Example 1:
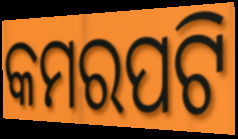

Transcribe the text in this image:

କମରପଟି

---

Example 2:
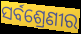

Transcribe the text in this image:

ସର୍ବଶ୍ରେଣୀର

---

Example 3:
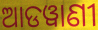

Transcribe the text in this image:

ଆଡୱାଣୀ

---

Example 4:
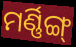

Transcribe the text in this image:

ମର୍ଣ୍ଣିଙ୍ଗ୍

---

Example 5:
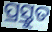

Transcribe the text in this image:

ପ୍ର୍ରସ୍ତୁତ